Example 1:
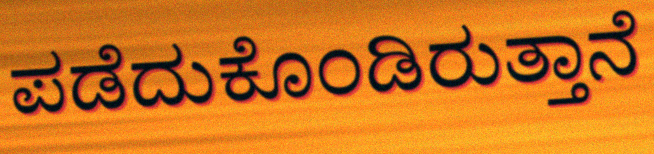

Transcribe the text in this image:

ಪಡೆದುಕೊಂಡಿರುತ್ತಾನೆ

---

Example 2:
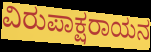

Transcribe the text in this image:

ವಿರುಪಾಕ್ಷರಾಯನ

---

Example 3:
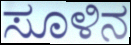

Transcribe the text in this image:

ಸೂಳಿನ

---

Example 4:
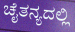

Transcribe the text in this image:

ಚೈತನ್ಯದಲ್ಲಿ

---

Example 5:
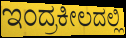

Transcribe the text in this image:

ಇಂದ್ರಕೀಲದಲ್ಲಿ